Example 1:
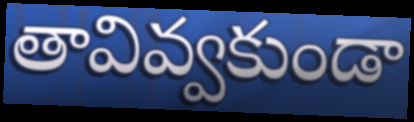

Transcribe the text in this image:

తావివ్వకుండా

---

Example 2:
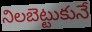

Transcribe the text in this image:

నిలబెట్టుకునే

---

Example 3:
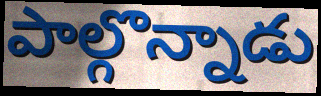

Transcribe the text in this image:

పాల్గొన్నాడు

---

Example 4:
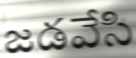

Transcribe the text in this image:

జడవేసి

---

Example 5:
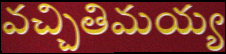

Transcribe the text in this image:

వచ్చితిమయ్య